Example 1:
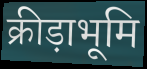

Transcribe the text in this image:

क्रीड़ाभूमि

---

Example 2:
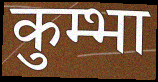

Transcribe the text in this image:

कुम्भा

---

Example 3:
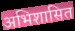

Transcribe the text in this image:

अभिशासित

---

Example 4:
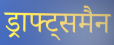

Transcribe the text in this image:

ड्राफ्ट्समैन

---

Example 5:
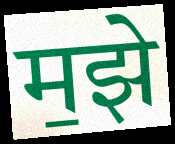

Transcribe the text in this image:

म॒झे